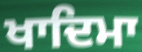
ਖਾਦਿਮਾ